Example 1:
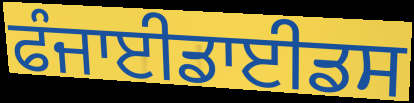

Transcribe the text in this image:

ਫੰਜਾਈਡਾਈਡਸ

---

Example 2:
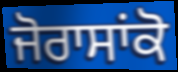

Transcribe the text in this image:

ਜੋਰਾਸਾਂਕੋ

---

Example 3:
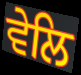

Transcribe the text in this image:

ਵੇਲਿ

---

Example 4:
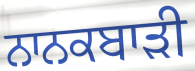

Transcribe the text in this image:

ਨਾਨਕਬਾੜੀ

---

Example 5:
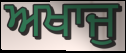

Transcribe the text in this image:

ਅਖਾਜੁ